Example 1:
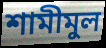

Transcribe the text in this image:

শামীমুল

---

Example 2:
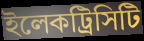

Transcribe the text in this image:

ইলেকট্রিসিটি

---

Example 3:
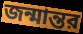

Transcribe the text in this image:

জন্মান্তর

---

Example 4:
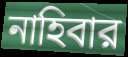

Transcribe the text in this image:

নাহিবার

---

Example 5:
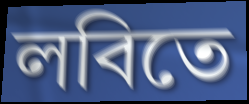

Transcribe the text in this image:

লবিতে